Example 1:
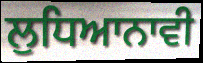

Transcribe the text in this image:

ਲੁਧਿਆਨਾਵੀ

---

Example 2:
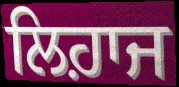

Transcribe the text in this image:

ਲਿਹ਼ਾਜ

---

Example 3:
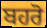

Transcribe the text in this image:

ਬਹਰੋ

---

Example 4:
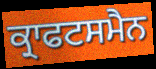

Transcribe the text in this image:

ਕ੍ਰਾਫਟਸਮੈਨ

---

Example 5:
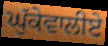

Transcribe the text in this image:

ਘੁੱਕੇਵਾਲੀਏ